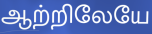
ஆற்றிலேயே